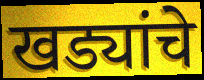
खड्यांचे